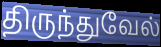
திருந்துவேல்